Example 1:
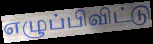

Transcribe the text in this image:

எழுப்பிவிட்டு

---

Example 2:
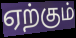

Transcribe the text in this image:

ஏற்கும்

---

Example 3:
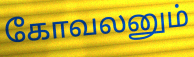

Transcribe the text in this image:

கோவலனும்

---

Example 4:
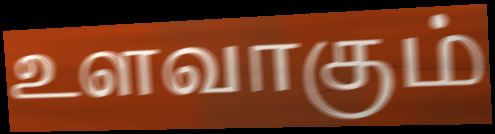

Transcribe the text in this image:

உளவாகும்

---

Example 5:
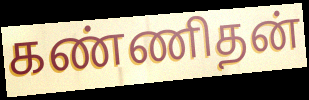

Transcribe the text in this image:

கண்ணிதன்